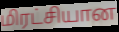
மிரட்சியான